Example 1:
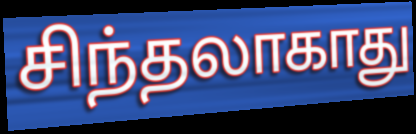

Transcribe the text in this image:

சிந்தலாகாது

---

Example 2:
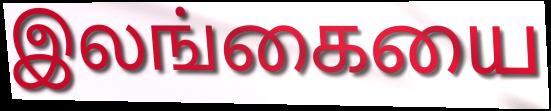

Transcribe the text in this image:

இலங்கையை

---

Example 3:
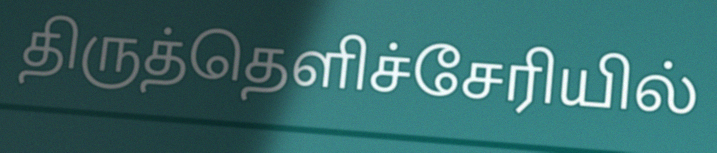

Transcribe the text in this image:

திருத்தெளிச்சேரியில்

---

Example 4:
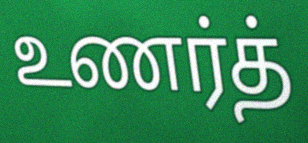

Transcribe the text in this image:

உணர்த்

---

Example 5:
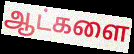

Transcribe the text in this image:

ஆட்களை